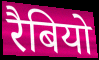
रैबियो